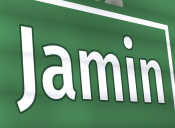
Jamin